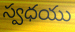
స్వధయు